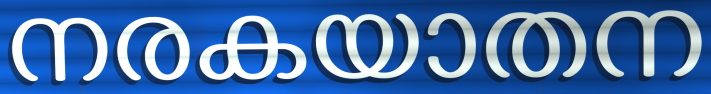
നരകയാതന